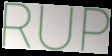
RUP